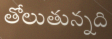
తోలుతున్నది